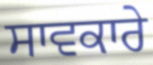
ਸਾਵਕਾਰੇ